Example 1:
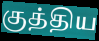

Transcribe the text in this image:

குத்திய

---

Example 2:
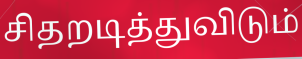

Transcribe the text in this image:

சிதறடித்துவிடும்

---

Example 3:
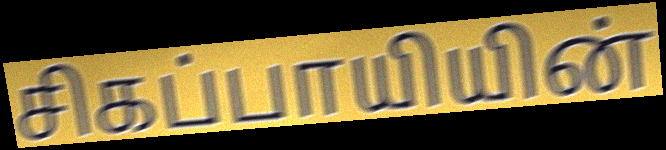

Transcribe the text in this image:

சிகப்பாயியின்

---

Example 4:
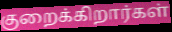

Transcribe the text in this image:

குறைக்கிறார்கள்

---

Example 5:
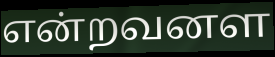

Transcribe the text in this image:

என்றவனள